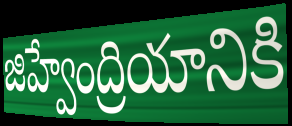
జిహ్వేంద్రియానికి